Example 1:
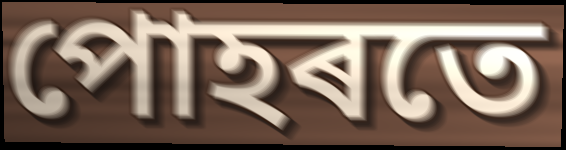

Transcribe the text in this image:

পোহৰতে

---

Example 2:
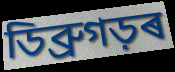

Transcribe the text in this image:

ডিব্ৰুগড়ৰ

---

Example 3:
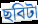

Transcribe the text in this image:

ছবিটা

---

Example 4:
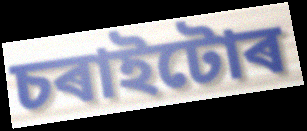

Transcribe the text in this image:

চৰাইটোৰ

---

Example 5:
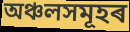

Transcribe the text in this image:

অঞ্চলসমূহৰ